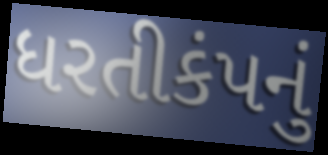
ધરતીકંપનું